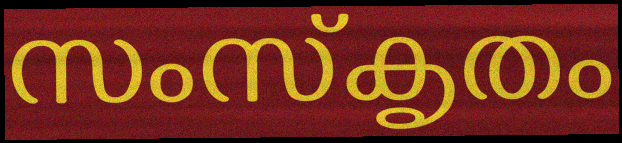
സംസ്‌കൃതം